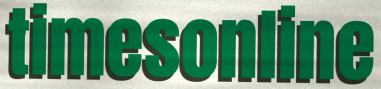
timesonline